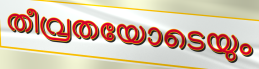
തീവ്രതയോടെയും